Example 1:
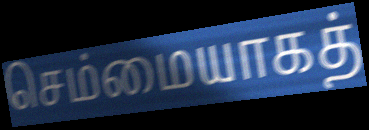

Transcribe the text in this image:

செம்மையாகத்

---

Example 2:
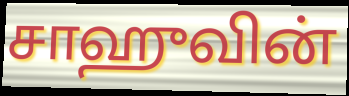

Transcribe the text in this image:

சாஹுவின்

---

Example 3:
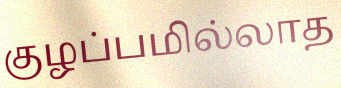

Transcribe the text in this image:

குழப்பமில்லாத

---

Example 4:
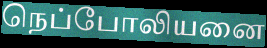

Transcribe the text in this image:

நெப்போலியனை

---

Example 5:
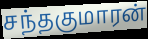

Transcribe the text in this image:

சந்தகுமாரன்